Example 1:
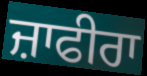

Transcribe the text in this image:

ਜ਼ਾਫੀਰਾ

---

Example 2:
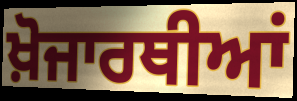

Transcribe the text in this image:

ਖ਼ੋਜਾਰਥੀਆਂ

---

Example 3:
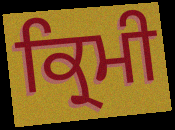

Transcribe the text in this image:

ਕ੍ਰਿਮੀ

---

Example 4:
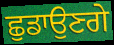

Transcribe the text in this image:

ਛੁਡਾਉਣਗੇ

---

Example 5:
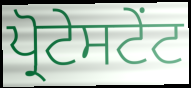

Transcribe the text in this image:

ਪ੍ਰੋਟੇਸਟੇਂਟ